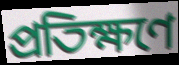
প্রতিক্ষণে